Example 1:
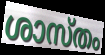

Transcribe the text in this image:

ശാസ്തം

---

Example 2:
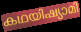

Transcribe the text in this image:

കഥയിഷ്യാമി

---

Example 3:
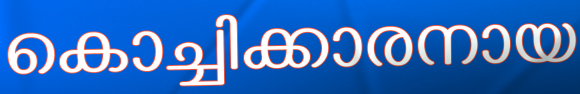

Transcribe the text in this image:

കൊച്ചിക്കാരനായ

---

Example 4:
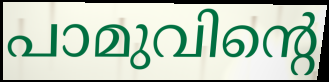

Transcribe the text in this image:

പാമുവിന്റെ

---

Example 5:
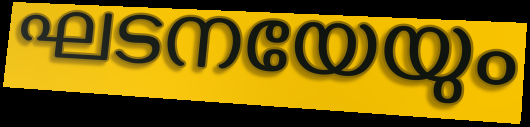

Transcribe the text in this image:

ഘടനയേയും